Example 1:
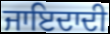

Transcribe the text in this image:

ਜਾਇਦਾਦੀ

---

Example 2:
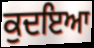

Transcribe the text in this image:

ਕੁਦਇਆ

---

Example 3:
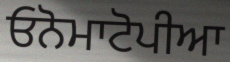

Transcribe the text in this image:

ਓਨੋਮਾਟੋਪੀਆ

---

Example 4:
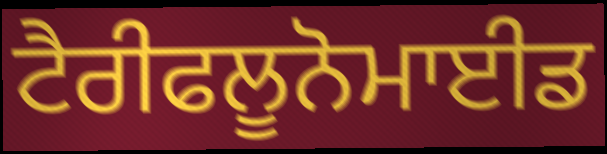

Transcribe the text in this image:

ਟੈਰੀਫਲੂਨੋਮਾਈਡ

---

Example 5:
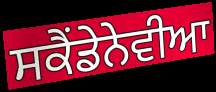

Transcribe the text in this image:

ਸਕੈਂਡੇਨੇਵੀਆ